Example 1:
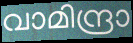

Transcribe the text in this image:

വാമിന്ദ്രാ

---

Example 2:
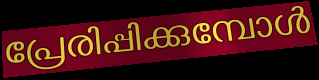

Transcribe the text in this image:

പ്രേരിപ്പിക്കുമ്പോൾ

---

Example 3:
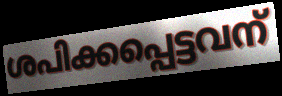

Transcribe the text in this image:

ശപിക്കപ്പെട്ടവന്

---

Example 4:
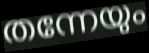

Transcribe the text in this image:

തന്നേയും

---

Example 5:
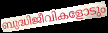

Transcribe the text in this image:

ബുദ്ധിജീവികളോടും